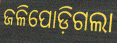
ଜଳିପୋଡ଼ିଗଲା